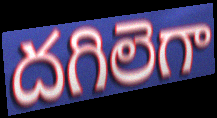
దగిలెగా